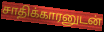
சாதிக்காரனுடன்